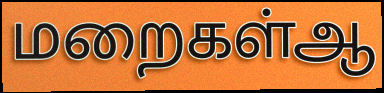
மறைகள்ஆ